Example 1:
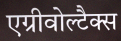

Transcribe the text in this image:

एग्रीवोल्टैक्स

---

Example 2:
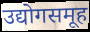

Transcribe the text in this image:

उद्योगसमूह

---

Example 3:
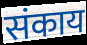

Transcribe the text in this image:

संकाय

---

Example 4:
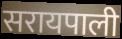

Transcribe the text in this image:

सरायपाली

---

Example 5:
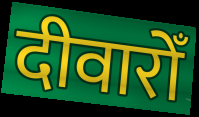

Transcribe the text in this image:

दीवारोँ